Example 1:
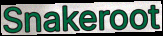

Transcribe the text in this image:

Snakeroot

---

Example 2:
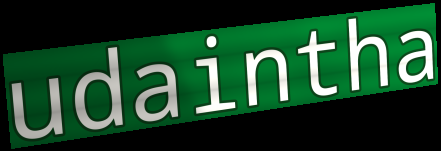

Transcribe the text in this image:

udaintha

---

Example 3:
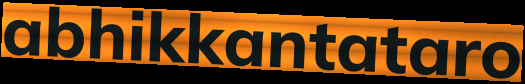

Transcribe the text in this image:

abhikkantataro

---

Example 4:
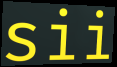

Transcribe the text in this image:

sii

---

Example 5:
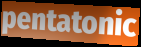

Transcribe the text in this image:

pentatonic